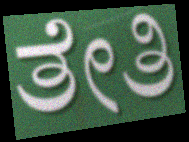
ತೇತಿ